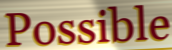
Possible